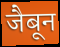
जैबून